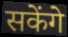
सकेंगे